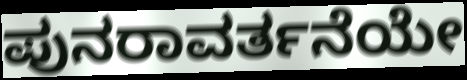
ಪುನರಾವರ್ತನೆಯೇ